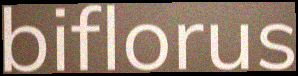
biflorus